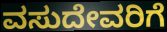
ವಸುದೇವರಿಗೆ